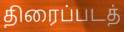
திரைப்படத்